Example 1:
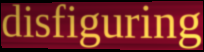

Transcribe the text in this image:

disfiguring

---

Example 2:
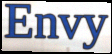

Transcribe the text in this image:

Envy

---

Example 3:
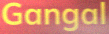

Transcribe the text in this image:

Gangal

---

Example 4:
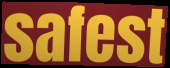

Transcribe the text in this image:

safest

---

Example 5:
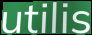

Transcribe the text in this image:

utilis